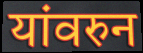
यांवरुन